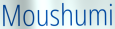
Moushumi